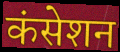
कंसेशन